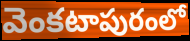
వెంకటాపురంలో